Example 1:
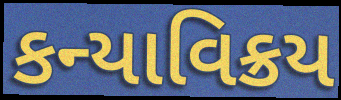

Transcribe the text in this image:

કન્યાવિક્રય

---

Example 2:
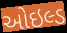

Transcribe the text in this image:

ઓઇલ્ડ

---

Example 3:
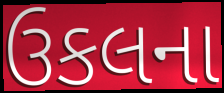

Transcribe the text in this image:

ઉકલના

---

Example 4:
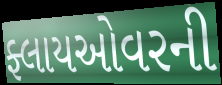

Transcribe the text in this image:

ફ્લાયઓવરની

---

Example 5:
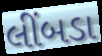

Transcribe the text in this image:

લીંબડા